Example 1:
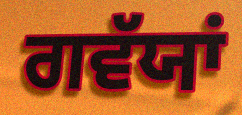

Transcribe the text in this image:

ਗਵੱਯਾਂ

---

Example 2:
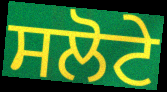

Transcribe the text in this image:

ਸਲੋਟੇ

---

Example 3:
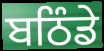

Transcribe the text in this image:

ਬਠਿੰਡੇ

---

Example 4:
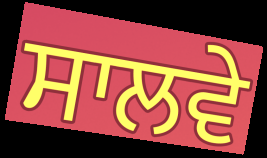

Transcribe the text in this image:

ਸਾਲਵੇ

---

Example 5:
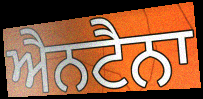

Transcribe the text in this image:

ਐਨਟੈਨਾ